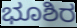
ಭೂಶಿರ